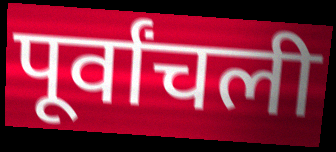
पूर्वांचली